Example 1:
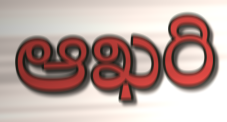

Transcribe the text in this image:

ఆఖరి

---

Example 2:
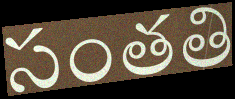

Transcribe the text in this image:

సంతతి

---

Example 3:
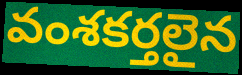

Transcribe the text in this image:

వంశకర్తలైన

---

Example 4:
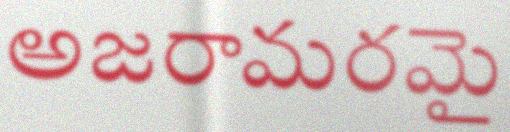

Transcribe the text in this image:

అజరామరమై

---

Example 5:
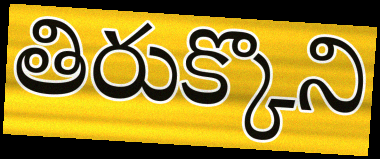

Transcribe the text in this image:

తిరుక్కొని